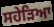
ਸਹੇੜਿਆ